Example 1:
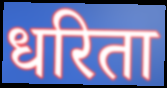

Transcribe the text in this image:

धरिता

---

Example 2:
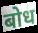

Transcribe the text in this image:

बोध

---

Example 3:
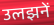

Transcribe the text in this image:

उलझनें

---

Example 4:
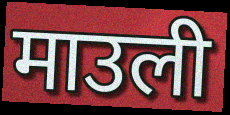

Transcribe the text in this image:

माउली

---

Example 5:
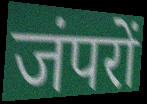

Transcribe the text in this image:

जंपरों